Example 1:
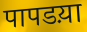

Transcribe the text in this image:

पापडय़ा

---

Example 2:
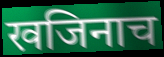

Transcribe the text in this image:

खजिनाच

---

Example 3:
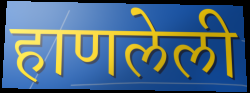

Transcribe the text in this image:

हाणलेली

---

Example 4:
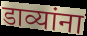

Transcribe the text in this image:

डाव्यांना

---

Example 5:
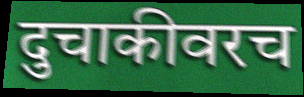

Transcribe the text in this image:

दुचाकीवरच